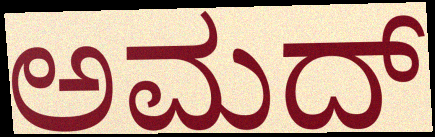
ಅಮದ್